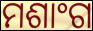
ମଶାଂଗ